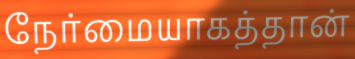
நேர்மையாகத்தான்